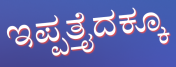
ಇಪ್ಪತ್ತೈದಕ್ಕೂ